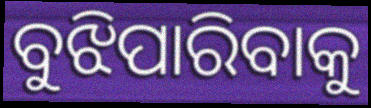
ବୁଝିପାରିବାକୁ